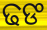
ଢଙ